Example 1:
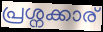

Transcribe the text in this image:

പ്രശ്നക്കാര്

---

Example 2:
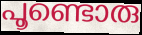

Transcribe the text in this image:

പൂണ്ടൊരു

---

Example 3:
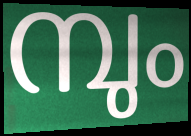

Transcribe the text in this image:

മ്പും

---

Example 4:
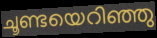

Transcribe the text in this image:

ചൂണ്ടയെറിഞ്ഞു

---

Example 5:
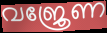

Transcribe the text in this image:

വജ്രേണ